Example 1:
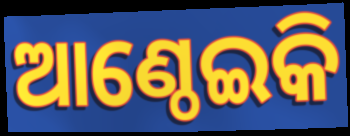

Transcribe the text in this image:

ଆଣ୍ଠେଇକି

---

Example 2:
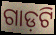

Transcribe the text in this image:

ଗାଡ଼ଟି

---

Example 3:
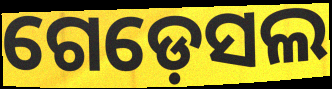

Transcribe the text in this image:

ଗେଡ଼େସଲ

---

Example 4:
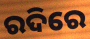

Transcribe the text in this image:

ରଦିରେ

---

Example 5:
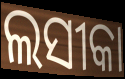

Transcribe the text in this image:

ଲସୀକା